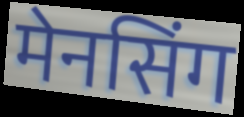
मेनसिंग